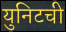
युनिटची